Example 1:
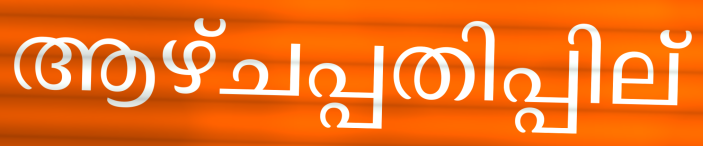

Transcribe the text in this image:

ആഴ്ചപ്പതിപ്പില്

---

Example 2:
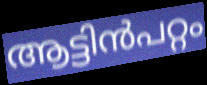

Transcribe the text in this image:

ആട്ടിൻപറ്റം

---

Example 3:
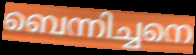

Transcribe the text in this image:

ബെന്നിച്ചനെ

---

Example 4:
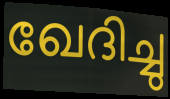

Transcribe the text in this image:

ഖേദിച്ചു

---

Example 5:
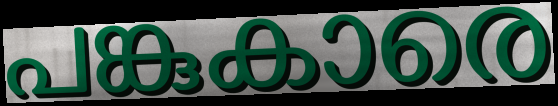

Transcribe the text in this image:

പങ്കുകാരെ